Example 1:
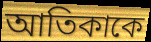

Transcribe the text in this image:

আতিকাকে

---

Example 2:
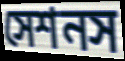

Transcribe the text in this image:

সেশনস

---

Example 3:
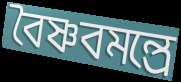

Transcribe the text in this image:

বৈষ্ণবমন্ত্রে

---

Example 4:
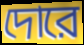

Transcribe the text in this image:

দোরে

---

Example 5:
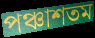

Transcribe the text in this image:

পঞ্চাশতম